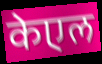
केएल